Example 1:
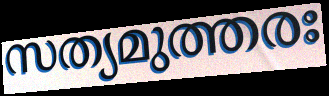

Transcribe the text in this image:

സത്യമുത്തരഃ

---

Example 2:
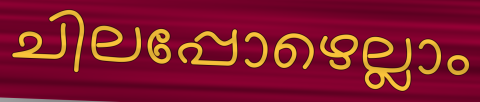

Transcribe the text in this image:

ചിലപ്പോഴെല്ലാം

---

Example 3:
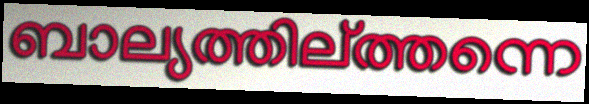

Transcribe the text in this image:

ബാല്യത്തില്ത്തന്നെ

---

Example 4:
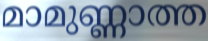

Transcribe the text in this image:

മാമുണ്ണാത്ത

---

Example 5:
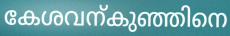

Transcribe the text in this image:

കേശവന്കുഞ്ഞിനെ